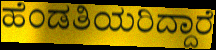
ಹೆಂಡತಿಯರಿದ್ದಾರೆ